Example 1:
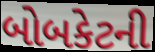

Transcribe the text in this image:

બોબકેટની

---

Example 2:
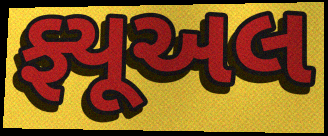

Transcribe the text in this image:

ફ્યૂઅલ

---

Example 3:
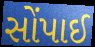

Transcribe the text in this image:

સોંપાઈ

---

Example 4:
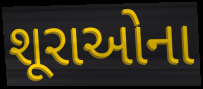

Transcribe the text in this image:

શૂરાઓના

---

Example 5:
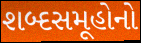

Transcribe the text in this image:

શબ્દસમૂહોનો